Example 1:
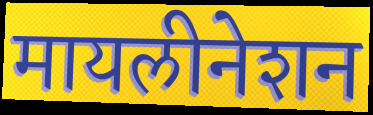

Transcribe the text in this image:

मायलीनेशन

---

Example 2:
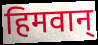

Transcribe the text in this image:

हिमवान्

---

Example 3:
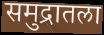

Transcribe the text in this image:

समुद्रातला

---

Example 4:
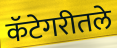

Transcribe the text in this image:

कॅटेगरीतले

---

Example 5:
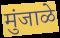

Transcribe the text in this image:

मुंजाळे